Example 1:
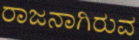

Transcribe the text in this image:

ರಾಜನಾಗಿರುವ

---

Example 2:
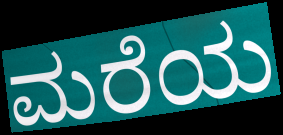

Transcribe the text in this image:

ಮರೆಯ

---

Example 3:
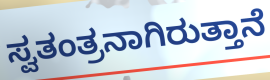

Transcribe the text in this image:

ಸ್ವತಂತ್ರನಾಗಿರುತ್ತಾನೆ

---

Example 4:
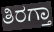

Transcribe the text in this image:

ತಿರಗ್ತಾ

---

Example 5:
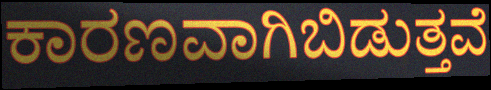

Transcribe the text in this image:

ಕಾರಣವಾಗಿಬಿಡುತ್ತವೆ